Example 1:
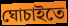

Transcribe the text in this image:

ঘোচাইতে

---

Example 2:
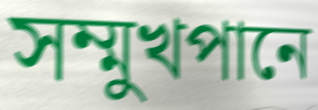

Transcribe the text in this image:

সম্মুখপানে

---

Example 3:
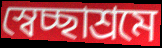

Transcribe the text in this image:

স্বেচ্ছাশ্রমে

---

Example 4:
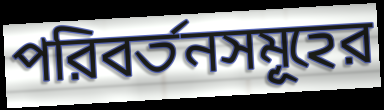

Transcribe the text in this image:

পরিবর্তনসমূহের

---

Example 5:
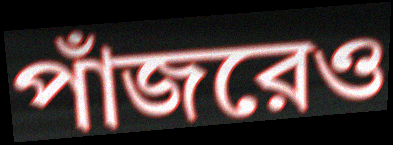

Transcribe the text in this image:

পাঁজরেও